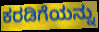
ಕರಡಿಗೆಯನ್ನು